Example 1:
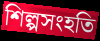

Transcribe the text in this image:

শিল্পসংহতি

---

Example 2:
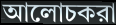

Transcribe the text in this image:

আলোচকরা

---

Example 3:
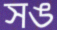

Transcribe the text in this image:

সঙ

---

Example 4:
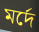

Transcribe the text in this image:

মর্দে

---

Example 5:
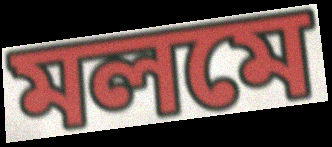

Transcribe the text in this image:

মলমে